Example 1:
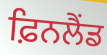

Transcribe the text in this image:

ਫ਼ਿਨਲੈਂਡ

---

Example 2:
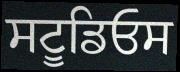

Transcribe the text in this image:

ਸਟੂਡਿਓਸ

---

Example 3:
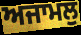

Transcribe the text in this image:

ਅਜਾਮਲੁ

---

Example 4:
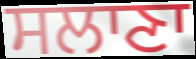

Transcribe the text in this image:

ਸਲਾਣਾ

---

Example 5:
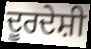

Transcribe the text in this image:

ਦੂਰਦੇਸ਼ੀ